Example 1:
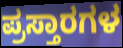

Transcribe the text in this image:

ಪ್ರಸ್ತಾರಗಳ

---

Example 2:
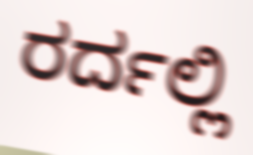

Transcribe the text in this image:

ರರ್ದಲ್ಲಿ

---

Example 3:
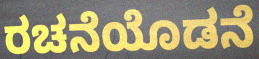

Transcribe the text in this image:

ರಚನೆಯೊಡನೆ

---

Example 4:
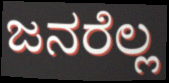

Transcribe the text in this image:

ಜನರೆಲ್ಲ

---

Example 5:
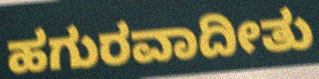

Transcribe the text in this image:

ಹಗುರವಾದೀತು